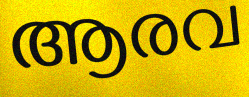
ആരവ